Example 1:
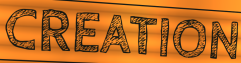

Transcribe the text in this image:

CREATION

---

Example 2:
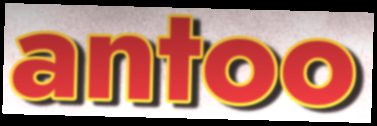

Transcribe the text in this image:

antoo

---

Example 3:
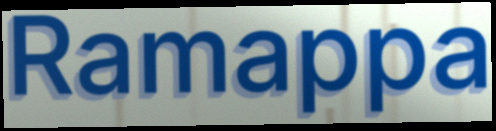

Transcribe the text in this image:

Ramappa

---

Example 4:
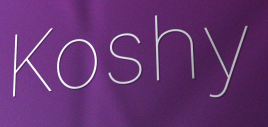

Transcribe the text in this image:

Koshy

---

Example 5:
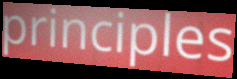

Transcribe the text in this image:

principles